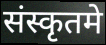
संस्कृतमे